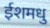
ईशमधु